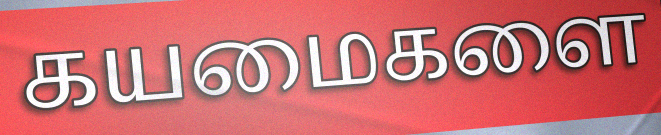
கயமைகளை